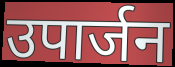
उपार्जन